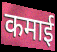
कमाई